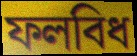
ফলবিধ